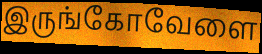
இருங்கோவேளை